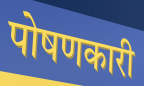
पोषणकारी